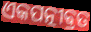
ଏକପତ୍ନୀବ୍ରତ